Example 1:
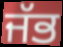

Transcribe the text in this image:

ਜੱਭ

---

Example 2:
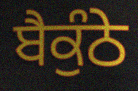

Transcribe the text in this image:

ਬੈਕੁੰਠੇ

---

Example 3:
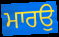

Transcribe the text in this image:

ਮਾਰਉ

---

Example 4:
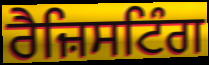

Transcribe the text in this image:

ਰੈਜ਼ਿਸਟਿੰਗ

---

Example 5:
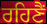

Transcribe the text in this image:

ਰਹਿਣੈਂ